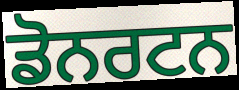
ਡੋਨਰਟਨ